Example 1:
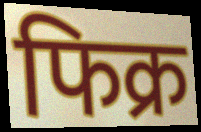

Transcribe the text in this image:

फिक्र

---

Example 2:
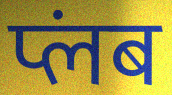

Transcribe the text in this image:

प्लंब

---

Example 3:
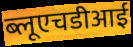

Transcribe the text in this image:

ब्लूएचडीआई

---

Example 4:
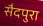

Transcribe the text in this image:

सैदपुरा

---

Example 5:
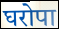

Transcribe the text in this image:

घरोपा